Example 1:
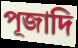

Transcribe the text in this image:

পূজাদি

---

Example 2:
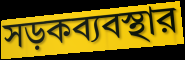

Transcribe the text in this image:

সড়কব্যবস্থার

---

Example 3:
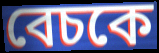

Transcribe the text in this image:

বেচকে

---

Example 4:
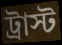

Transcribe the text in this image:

ট্রাস্ট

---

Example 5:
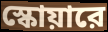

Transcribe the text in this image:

স্কোয়ারে